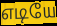
எடியே